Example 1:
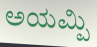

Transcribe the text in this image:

ಅಯಮ್ಪಿ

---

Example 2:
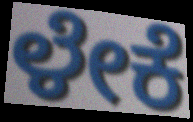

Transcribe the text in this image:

ಳೇಕೆ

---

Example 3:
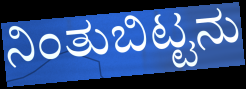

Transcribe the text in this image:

ನಿಂತುಬಿಟ್ಟನು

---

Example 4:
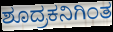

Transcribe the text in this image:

ಶೂದ್ರಕನಿಗಿಂತ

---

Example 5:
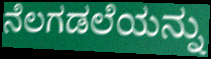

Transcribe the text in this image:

ನೆಲಗಡಲೆಯನ್ನು